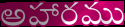
అహారము